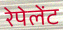
रेपेलेंट